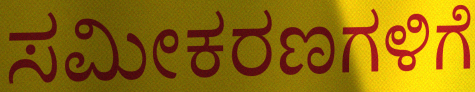
ಸಮೀಕರಣಗಳಿಗೆ